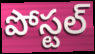
పోస్టల్